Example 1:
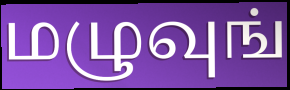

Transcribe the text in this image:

மழுவுங்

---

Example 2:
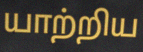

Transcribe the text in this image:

யாற்றிய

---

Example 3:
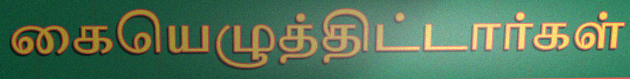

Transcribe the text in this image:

கையெழுத்திட்டார்கள்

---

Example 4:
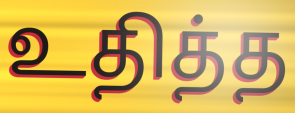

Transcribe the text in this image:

உதித்த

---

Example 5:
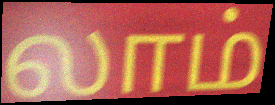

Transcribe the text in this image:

லாம்